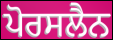
ਪੋਰਸਲੈਨ